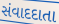
સંવાદદાતા